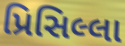
પ્રિસિલ્લા